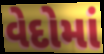
વેદોમાં